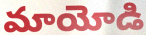
మాయోడి